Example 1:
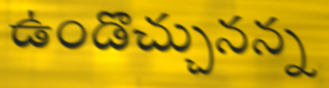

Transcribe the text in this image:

ఉండొచ్చునన్న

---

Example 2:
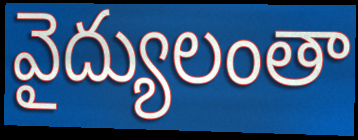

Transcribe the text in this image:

వైద్యులంతా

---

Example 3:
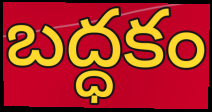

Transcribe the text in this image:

బద్ధకం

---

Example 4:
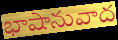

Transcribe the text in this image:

భాషానువాద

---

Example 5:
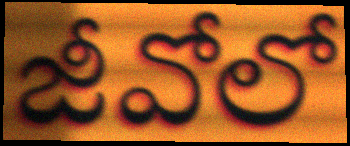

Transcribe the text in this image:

జీవోలో